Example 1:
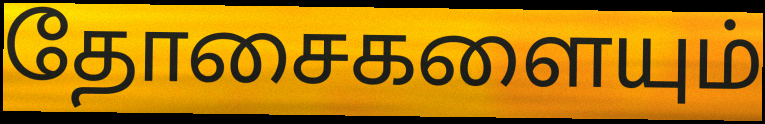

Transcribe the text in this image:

தோசைகளையும்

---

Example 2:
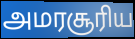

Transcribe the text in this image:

அமரசூரிய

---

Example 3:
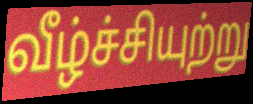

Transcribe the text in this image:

வீழ்ச்சியுற்று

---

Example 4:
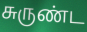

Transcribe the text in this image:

சுருண்ட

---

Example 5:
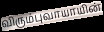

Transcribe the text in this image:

விரும்புவாயாயின்